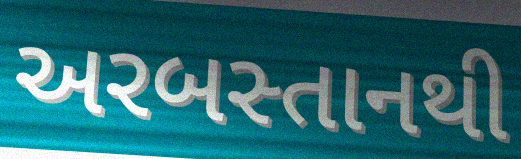
અરબસ્તાનથી